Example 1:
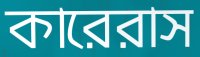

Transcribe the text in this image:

কারেরাস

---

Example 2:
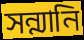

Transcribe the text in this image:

সন্মানি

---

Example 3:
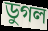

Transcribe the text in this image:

ডুগল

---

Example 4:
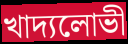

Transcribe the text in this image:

খাদ্যলোভী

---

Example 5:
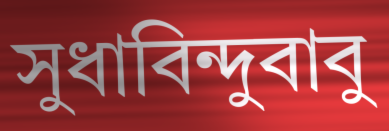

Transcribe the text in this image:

সুধাবিন্দুবাবু